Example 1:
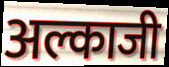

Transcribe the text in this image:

अल्काजी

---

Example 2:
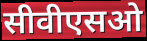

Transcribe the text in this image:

सीवीएसओ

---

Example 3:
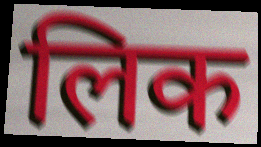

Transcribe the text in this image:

लिक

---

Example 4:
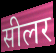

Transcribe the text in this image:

सीलर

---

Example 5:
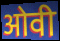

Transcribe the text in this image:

ओवी